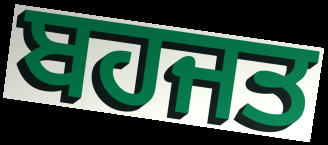
ਬਹਜਤ